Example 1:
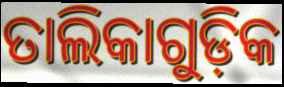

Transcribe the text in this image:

ତାଲିକାଗୁଡ଼ିକ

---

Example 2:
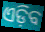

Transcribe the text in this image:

ଏଡ଼ିବ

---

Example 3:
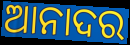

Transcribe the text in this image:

ଆନାଦର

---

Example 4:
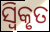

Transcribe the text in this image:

ସ୍ଵିକୃତ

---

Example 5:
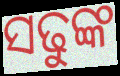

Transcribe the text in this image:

ସଢୁଙ୍କ